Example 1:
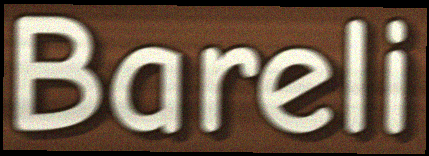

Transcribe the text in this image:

Bareli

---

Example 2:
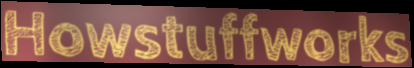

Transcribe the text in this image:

Howstuffworks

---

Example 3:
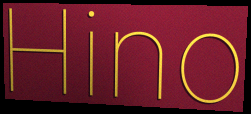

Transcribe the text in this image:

Hino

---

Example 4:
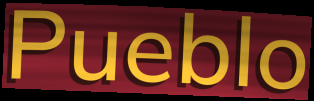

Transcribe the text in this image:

Pueblo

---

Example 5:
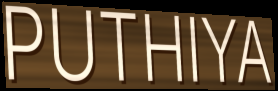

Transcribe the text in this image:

PUTHIYA